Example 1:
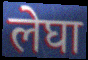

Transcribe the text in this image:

लेघा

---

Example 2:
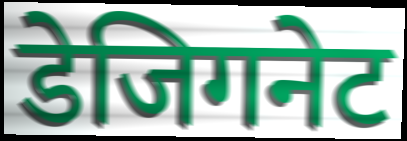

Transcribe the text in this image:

डेजिगनेट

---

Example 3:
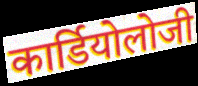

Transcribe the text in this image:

कार्डियोलोजी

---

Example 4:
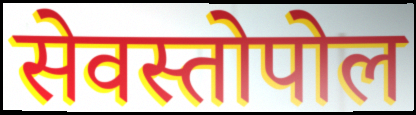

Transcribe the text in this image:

सेवस्तोपोल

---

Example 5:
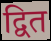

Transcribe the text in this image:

द्वित